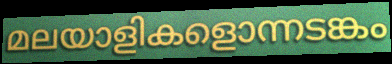
മലയാളികളൊന്നടങ്കം